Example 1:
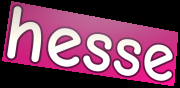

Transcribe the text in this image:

hesse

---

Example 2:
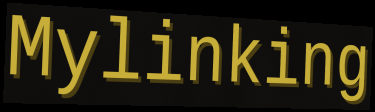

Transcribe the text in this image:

Mylinking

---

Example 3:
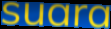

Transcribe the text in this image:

suara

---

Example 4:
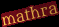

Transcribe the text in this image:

mathra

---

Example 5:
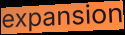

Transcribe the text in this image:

expansion